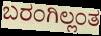
ಬರಂಗಿಲ್ಲಂತ